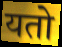
यतो